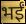
भईं